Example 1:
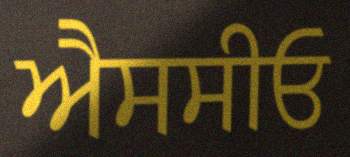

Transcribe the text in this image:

ਐਸਸੀਓ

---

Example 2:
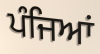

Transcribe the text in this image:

ਪੰਜਿਆਂ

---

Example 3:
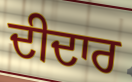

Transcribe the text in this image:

ਦੀਦਾਰ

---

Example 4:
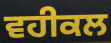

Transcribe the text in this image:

ਵਹੀਕਲ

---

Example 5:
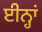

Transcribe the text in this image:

ਈਨ੍ਹਾਂ